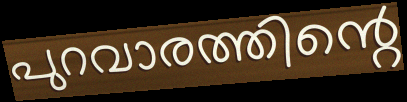
പുറവാരത്തിന്റെ